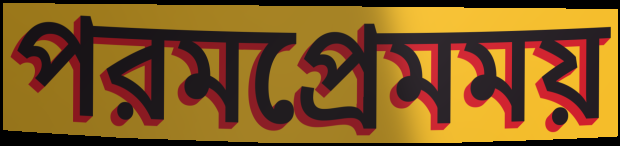
পরমপ্রেমময়